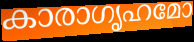
കാരാഗൃഹമോ